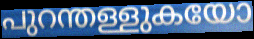
പുറന്തള്ളുകയോ